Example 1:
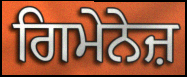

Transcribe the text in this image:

ਗਿਮੇਨੇਜ਼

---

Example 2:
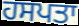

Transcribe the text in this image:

ਹਸਪਤਾ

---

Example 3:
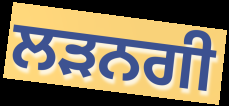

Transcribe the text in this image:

ਲੜਨਗੀ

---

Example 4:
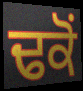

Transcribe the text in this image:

ਢਕੋਂ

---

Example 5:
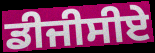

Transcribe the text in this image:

ਡੀਜੀਸੀਏ